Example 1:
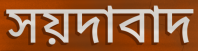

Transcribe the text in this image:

সয়দাবাদ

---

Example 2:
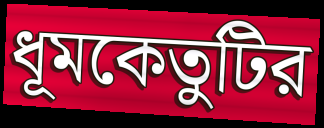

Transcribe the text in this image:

ধূমকেতুটির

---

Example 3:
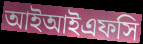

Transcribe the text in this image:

আইআইএফসি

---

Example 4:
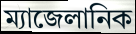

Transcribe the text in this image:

ম্যাজেলানিক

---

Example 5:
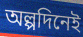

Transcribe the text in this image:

অল্পদিনেই